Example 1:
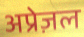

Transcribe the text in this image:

अप्रेज़ल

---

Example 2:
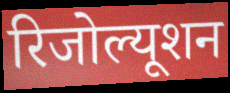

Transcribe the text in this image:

रिजोल्यूशन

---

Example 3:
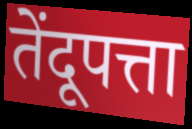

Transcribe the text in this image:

तेंदूपत्ता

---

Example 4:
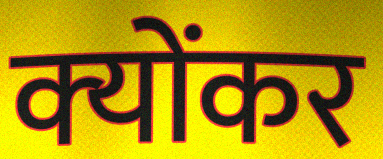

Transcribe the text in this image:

क्‍योंकर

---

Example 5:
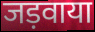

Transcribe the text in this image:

जड़वाया